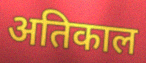
अतिकाल